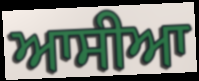
ਆਸੀਆ